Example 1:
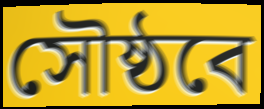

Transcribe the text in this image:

সৌষ্ঠবে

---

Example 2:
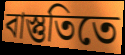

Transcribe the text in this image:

বাস্তুতিতে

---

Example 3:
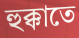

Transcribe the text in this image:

হুক্কাতে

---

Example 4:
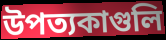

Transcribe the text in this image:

উপত্যকাগুলি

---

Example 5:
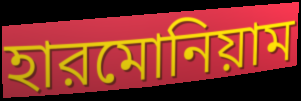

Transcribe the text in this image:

হারমোনিয়াম